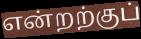
என்றற்குப்